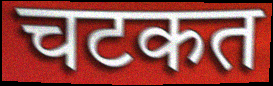
चटकत